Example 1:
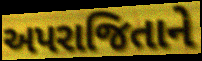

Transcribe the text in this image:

અપરાજિતાને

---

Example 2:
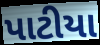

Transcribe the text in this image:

પાટીયા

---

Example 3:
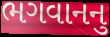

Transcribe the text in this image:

ભગવાનનુ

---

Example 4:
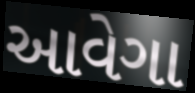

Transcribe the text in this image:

આવેગા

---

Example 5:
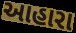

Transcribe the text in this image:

આહારા